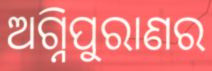
ଅଗ୍ନିପୁରାଣର